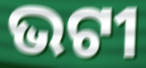
ଭଟୀ